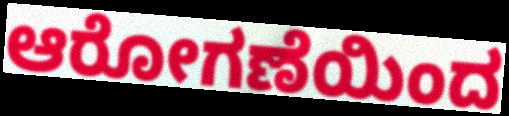
ಆರೋಗಣೆಯಿಂದ